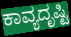
ಕಾವ್ಯದೃಷ್ಟಿ